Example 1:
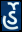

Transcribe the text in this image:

ર્હે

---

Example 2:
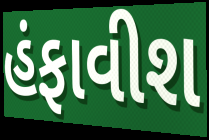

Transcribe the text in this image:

હંફાવીશ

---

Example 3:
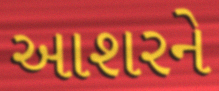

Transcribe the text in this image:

આશરને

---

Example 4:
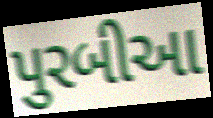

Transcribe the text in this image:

પુરબીઆ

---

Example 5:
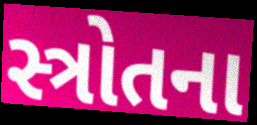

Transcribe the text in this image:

સ્ત્રોતના